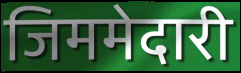
जिममेदारी